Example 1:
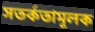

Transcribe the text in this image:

সতর্কতামূলক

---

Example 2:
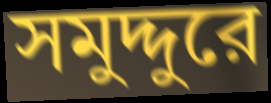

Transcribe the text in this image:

সমুদ্দুরে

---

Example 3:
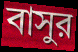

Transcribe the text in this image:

বাসুর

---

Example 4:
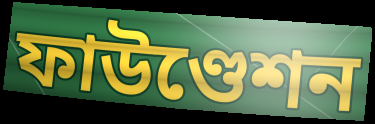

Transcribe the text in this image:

ফাউণ্ডেশন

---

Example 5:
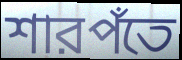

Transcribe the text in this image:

শারপঁতে